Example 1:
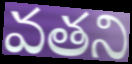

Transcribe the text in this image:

వతని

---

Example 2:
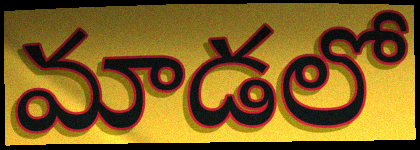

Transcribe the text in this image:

మాడలో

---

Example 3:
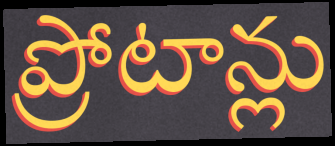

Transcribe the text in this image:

ప్రోటాన్లు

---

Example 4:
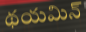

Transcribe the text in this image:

థయమిన్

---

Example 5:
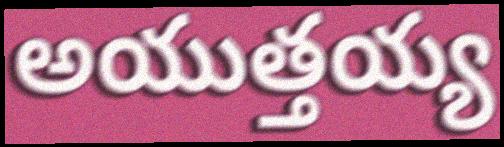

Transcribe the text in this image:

అయుత్తయ్య